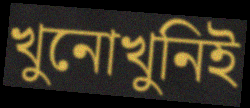
খুনোখুনিই